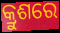
କ୍ରୁଶରେ